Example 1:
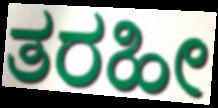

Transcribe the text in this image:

ತರಹೀ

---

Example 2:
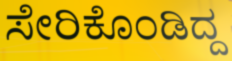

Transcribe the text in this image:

ಸೇರಿಕೊಂಡಿದ್ದ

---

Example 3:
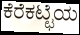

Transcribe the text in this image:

ಕೆರೆಕಟ್ಟೆಯ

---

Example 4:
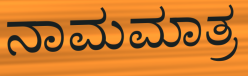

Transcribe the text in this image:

ನಾಮಮಾತ್ರ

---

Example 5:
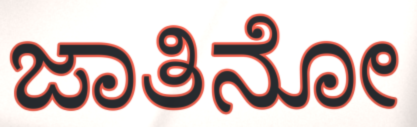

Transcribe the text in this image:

ಜಾತಿನೋ